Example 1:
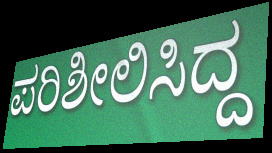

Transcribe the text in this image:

ಪರಿಶೀಲಿಸಿದ್ದ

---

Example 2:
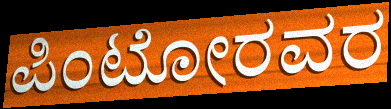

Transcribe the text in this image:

ಪಿಂಟೋರವರ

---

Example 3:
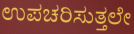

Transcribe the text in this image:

ಉಪಚರಿಸುತ್ತಲೇ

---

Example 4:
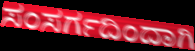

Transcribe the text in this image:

ಸಂಸರ್ಗದಿಂದಾಗಿ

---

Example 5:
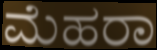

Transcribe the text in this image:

ಮೆಹರಾ